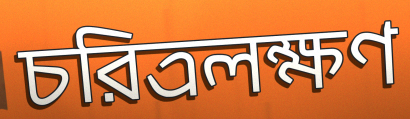
চরিত্রলক্ষণ